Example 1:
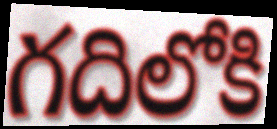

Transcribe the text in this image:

గదిలోకి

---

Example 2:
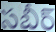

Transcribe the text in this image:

సబీర్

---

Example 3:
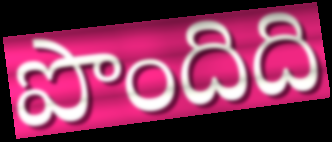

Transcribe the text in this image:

పొందిది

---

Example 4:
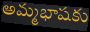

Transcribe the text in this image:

అమ్మభాషకు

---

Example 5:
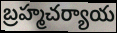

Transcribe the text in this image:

బ్రహ్మచర్యాయ